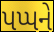
પપ્પને